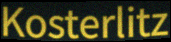
Kosterlitz